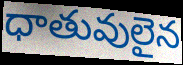
ధాతువులైన